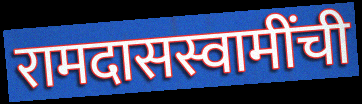
रामदासस्वामींची